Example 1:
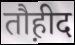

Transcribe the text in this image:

तौह़ीद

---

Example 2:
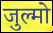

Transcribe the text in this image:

जुल्मो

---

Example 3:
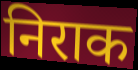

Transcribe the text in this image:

निराक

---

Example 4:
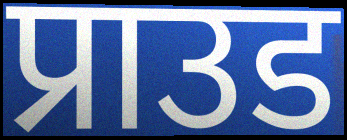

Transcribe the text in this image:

प्राउड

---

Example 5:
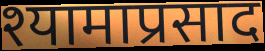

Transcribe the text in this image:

श्यामाप्रसाद